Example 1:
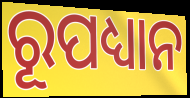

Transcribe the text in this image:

ରୂପଧ୍ୟାନ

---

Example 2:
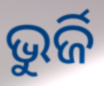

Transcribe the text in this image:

ଭୁର୍ଜି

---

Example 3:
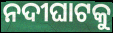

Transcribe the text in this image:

ନଦୀଘାଟକୁ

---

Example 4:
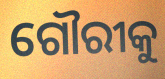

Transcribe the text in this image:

ଗୌରୀକୁ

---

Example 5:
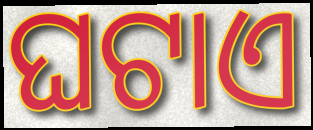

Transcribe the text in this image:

ଘଟାଏ